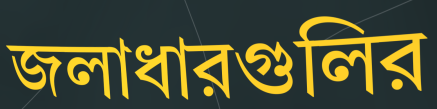
জলাধারগুলির